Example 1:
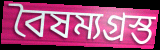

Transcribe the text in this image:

বৈষম্যগ্রস্ত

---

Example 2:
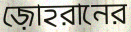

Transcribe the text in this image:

জ়োহরানের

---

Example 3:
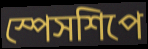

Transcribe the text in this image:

স্পেসশিপে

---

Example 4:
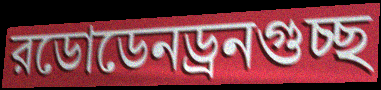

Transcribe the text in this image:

রডোডেনড্রনগুচ্ছ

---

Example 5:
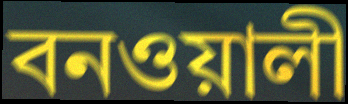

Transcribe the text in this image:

বনওয়ালী